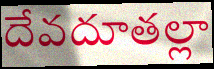
దేవదూతల్లా